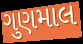
ગુણમાલ